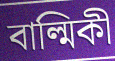
বাল্মিকী